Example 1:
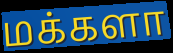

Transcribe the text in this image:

மக்களா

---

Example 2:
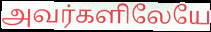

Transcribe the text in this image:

அவர்களிலேயே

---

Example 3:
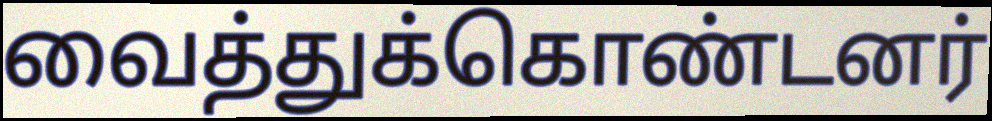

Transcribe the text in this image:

வைத்துக்கொண்டனர்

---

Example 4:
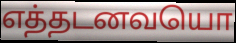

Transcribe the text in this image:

எத்தடனவயொ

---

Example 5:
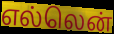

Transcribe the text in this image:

எல்லென்